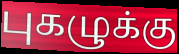
புகழுக்கு